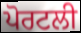
ਪੋਰਟਲੀ